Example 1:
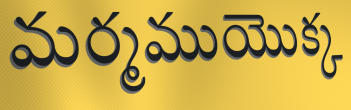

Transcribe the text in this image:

మర్మముయొక్క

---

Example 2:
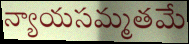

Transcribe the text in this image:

న్యాయసమ్మతమే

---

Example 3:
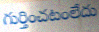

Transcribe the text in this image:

గుర్తించటంలేదు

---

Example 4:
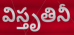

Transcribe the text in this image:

విస్తృతినీ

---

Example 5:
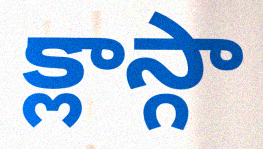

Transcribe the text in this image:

క్లాస్గా